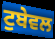
ਟੁਬੇਵਲ